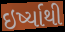
ઇર્ષ્યાથી